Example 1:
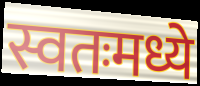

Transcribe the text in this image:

स्वतःमध्ये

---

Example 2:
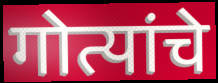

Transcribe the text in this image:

गोत्यांचे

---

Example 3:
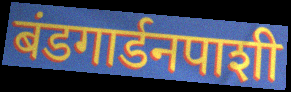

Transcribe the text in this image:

बंडगार्डनपाशी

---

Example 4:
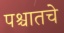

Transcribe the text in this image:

पश्चातचे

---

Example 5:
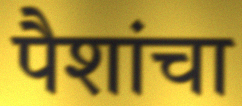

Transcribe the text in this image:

पैशांचा